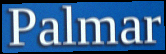
Palmar